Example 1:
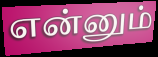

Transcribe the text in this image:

என்னும்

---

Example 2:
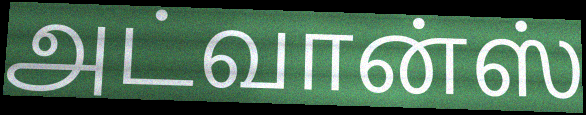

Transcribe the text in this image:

அட்வான்ஸ்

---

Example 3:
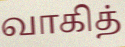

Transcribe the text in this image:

வாகித்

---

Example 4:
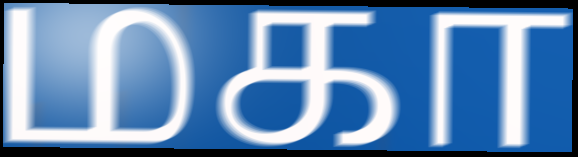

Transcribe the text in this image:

மகா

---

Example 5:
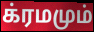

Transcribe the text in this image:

க்ரமமும்